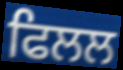
ਫਿਲਲ